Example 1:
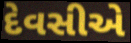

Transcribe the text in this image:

દેવસીએ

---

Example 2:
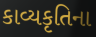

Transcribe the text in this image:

કાવ્યકૃતિના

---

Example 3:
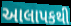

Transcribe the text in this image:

આલાપકથી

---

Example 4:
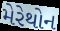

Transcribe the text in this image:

મેરેથોન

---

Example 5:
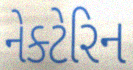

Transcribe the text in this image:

નેક્ટેરિન